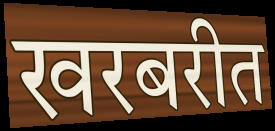
खरबरीत